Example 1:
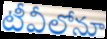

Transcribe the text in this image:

టీవీలోనూ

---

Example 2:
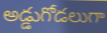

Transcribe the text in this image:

అడ్డుగోడలుగా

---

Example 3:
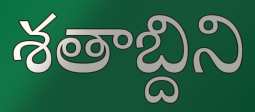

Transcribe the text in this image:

శతాబ్దిని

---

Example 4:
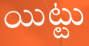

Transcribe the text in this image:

యిట్టు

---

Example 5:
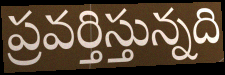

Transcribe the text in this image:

ప్రవర్తిస్తున్నది